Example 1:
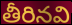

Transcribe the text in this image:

తీరినవి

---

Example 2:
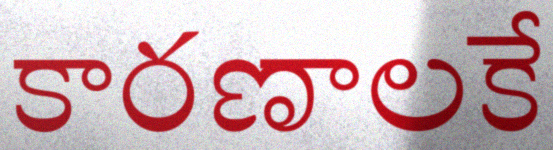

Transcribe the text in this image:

కారణాలకే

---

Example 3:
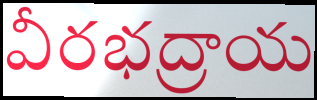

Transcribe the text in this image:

వీరభద్రాయ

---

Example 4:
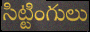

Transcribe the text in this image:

సిట్టింగులు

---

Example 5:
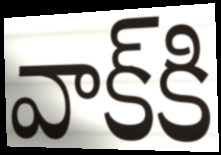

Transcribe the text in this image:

వాక్‌కి